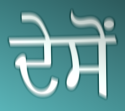
ਦੇਸੋਂ